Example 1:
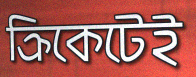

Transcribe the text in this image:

ক্রিকেটেই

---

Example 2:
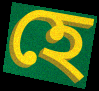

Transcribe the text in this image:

হে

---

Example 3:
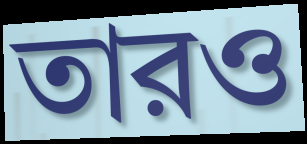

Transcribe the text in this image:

তারও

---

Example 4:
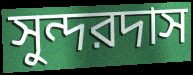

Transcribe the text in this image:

সুন্দরদাস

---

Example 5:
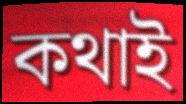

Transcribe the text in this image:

কথাই